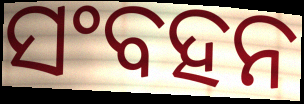
ସଂବହନ